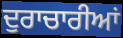
ਦੁਰਾਚਾਰੀਆਂ